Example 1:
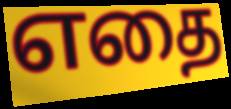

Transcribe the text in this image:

எதை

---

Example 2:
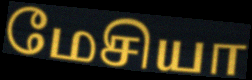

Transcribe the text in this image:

மேசியா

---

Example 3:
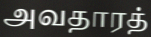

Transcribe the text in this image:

அவதாரத்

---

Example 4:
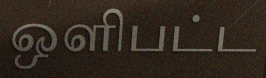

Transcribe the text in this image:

ஒளிபட்ட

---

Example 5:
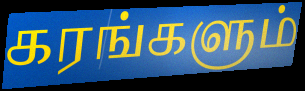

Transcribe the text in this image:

கரங்களும்